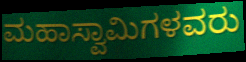
ಮಹಾಸ್ವಾಮಿಗಳವರು